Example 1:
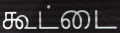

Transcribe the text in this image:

கூட்டை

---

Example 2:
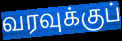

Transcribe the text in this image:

வரவுக்குப்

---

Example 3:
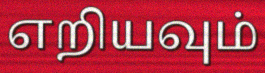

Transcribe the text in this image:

எறியவும்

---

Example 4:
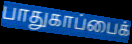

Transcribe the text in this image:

பாதுகாப்பைக்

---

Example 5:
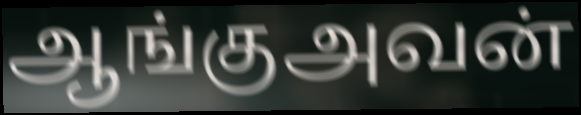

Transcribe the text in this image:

ஆங்குஅவன்